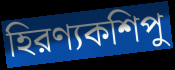
হিরণ্যকশিপু